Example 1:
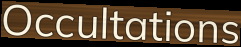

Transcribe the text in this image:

Occultations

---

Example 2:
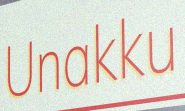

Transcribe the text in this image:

Unakku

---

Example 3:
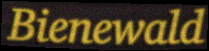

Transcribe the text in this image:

Bienewald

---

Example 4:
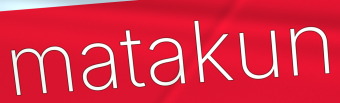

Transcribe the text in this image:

matakun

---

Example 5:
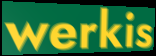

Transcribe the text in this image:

werkis